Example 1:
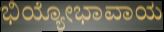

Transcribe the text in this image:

ಭಿಯ್ಯೋಭಾವಾಯ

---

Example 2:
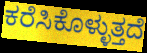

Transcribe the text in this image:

ಕರೆಸಿಕೊಳ್ಳುತ್ತದೆ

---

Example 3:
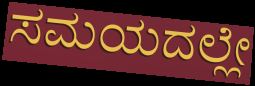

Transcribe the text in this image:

ಸಮಯದಲ್ಲೇ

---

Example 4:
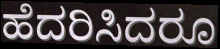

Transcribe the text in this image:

ಹೆದರಿಸಿದರೂ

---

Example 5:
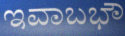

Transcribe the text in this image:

ಇವಾಬಭೌ